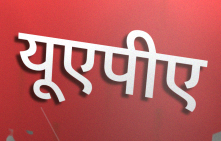
यूएपीए